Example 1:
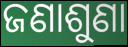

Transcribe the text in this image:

ଜଣାଶୁଣା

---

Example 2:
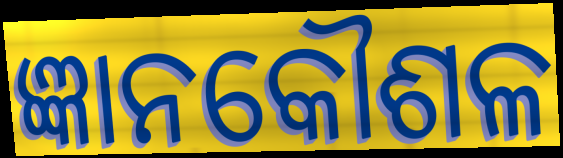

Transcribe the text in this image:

ଜ୍ଞାନକୌଶଳ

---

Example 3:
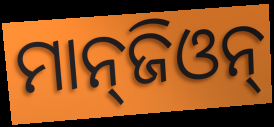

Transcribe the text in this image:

ମାନ୍‌ଜିଓନ୍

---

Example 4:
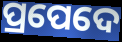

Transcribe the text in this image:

ପ୍ରପେଦେ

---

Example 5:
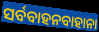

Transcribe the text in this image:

ସର୍ବବାହନବାହାନା